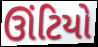
ઊંટિયો